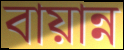
বায়ান্ন